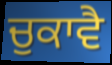
ਚੁਕਾਵੈ